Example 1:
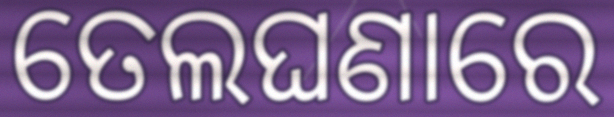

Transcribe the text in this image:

ତେଲଘଣାରେ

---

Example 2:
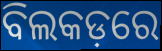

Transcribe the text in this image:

ବିଲକଡ଼ରେ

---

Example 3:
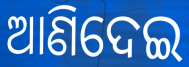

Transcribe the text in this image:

ଆଣିଦେଇ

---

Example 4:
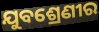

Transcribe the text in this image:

ଯୁବଶ୍ରେଣୀର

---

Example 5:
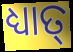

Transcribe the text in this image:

ଧ୍ୟାତ୍